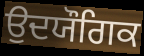
ਉਦਯੌਗਿਕ